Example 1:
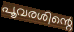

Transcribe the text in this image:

പൂവരശിന്റെ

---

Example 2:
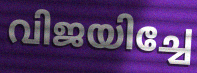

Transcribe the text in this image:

വിജയിച്ചേ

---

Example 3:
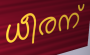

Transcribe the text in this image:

ധീരന്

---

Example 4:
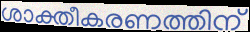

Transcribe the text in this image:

ശാക്തീകരണത്തിന്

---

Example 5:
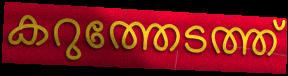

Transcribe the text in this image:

കറുത്തേടത്ത്